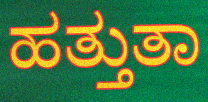
ಹತ್ತುತಾ